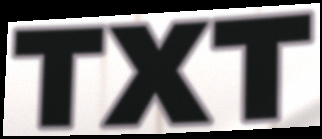
TXT